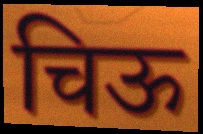
चिऊ